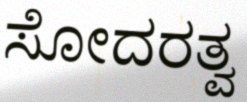
ಸೋದರತ್ವ